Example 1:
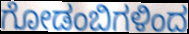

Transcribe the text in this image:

ಗೋಡಂಬಿಗಳಿಂದ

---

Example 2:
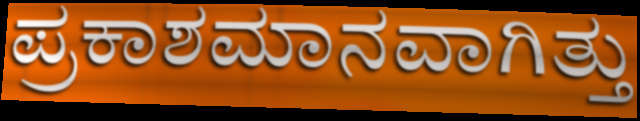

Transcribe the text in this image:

ಪ್ರಕಾಶಮಾನವಾಗಿತ್ತು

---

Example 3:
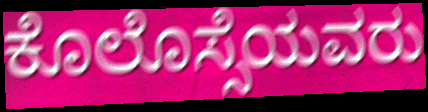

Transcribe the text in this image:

ಕೊಲೊಸ್ಸೆಯವರು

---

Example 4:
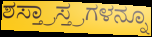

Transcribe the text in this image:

ಶಸ್ತ್ರಾಸ್ತ್ರಗಳನ್ನೂ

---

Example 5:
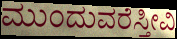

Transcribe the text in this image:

ಮುಂದುವರೆಸ್ತೀವಿ